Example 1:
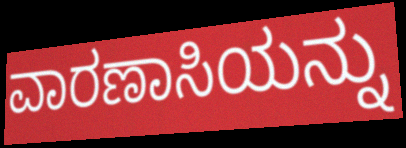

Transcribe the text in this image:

ವಾರಣಾಸಿಯನ್ನು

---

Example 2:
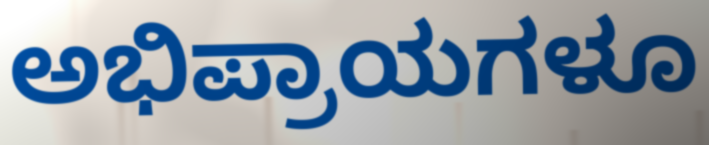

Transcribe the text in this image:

ಅಭಿಪ್ರಾಯಗಳೂ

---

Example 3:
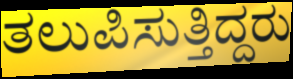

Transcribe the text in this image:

ತಲುಪಿಸುತ್ತಿದ್ದರು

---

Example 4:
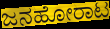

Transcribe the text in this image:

ಜನಹೋರಾಟ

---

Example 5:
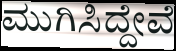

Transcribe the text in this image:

ಮುಗಿಸಿದ್ದೇವೆ